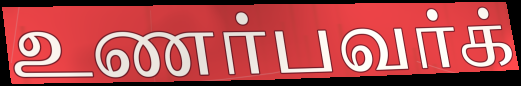
உணர்பவர்க்